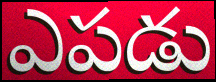
ఎపడు